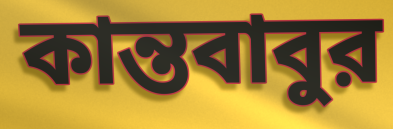
কান্তবাবুর